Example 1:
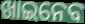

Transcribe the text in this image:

ଖାଇନେବ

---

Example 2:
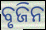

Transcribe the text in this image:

ବୃଜିନ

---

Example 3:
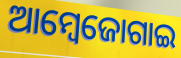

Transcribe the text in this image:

ଆମ୍ବେଜୋଗାଇ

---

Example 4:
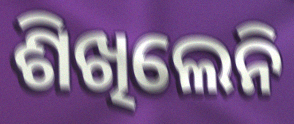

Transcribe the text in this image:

ଶିଖିଲେନି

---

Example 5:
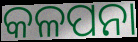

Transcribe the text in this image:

କଳପନା